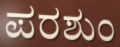
ಪರಶುಂ